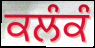
ਕਲੰਕੰ